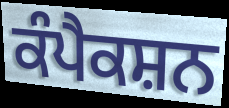
ਕੰਪੈਕਸ਼ਨ